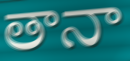
తానా